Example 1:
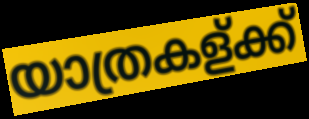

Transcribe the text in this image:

യാത്രകള്ക്ക്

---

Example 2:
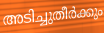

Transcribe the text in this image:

അടിച്ചുതീർക്കും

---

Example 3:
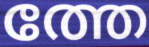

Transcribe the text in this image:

ത്തേ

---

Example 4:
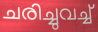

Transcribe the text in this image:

ചരിച്ചുവച്ച്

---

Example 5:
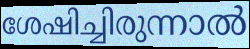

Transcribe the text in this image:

ശേഷിച്ചിരുന്നാൽ